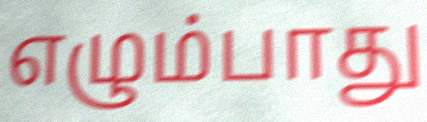
எழும்பாது